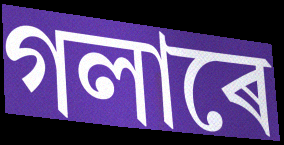
গলাৰে